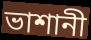
ভাশানী